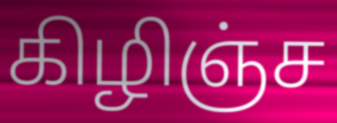
கிழிஞ்ச